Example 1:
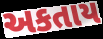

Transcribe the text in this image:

અકતાય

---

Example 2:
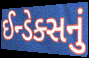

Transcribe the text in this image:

ઈન્ડેક્સનું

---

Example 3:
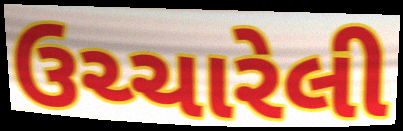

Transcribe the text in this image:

ઉચ્ચારેલી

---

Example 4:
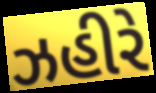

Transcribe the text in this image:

ઝહીરે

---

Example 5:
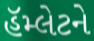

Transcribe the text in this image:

હૅમ્લેટને